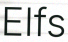
Elfs